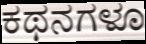
ಕಥನಗಳೂ